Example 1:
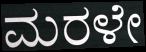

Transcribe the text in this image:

ಮರಳೇ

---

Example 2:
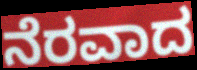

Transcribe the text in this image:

ನೆರವಾದ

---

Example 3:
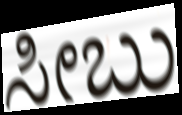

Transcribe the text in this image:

ಸೀಬು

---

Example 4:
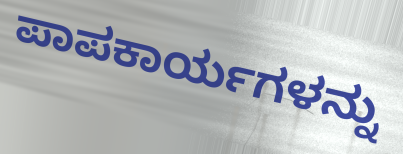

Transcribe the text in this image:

ಪಾಪಕಾರ್ಯಗಳನ್ನು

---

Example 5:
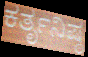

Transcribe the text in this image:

ಕರ್ತೃನಿಷ್ಠ